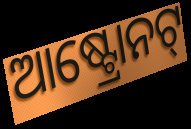
ଆଷ୍ଟ୍ରୋନଟ୍